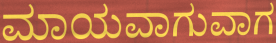
ಮಾಯವಾಗುವಾಗ